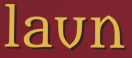
laun